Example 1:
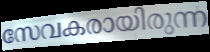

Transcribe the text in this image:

സേവകരായിരുന്ന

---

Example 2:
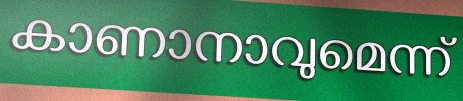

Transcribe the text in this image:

കാണാനാവുമെന്ന്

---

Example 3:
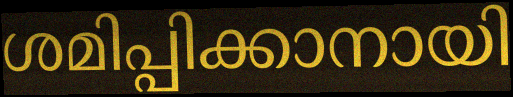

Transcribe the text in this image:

ശമിപ്പിക്കാനായി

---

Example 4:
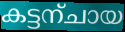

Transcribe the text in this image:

കട്ടന്ചായ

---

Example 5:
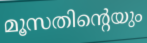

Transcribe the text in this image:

മൂസതിന്റെയും